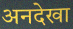
अनदेखा